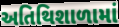
અતિથિશાળામાં